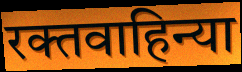
रक्तवाहिन्या